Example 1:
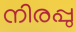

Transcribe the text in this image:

നിരപ്പു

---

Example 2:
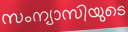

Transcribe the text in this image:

സംന്യാസിയുടെ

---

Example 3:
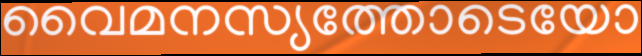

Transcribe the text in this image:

വൈമനസ്യത്തോടെയോ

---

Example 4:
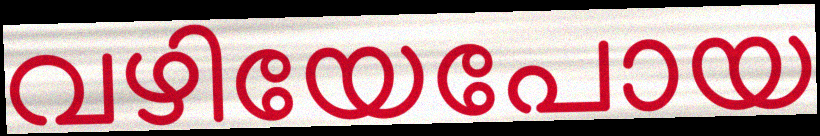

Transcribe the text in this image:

വഴിയേപോയ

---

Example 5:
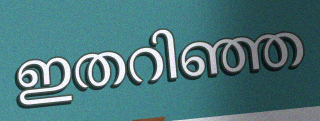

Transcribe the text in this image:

ഇതറിഞ്ഞ